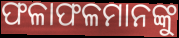
ଫଳାଫଳମାନଙ୍କୁ